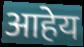
आहेय